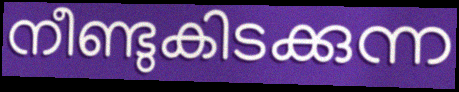
നീണ്ടുകിടക്കുന്ന